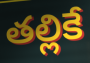
తల్లికే